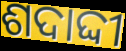
ଶଦାଦ୍ଦୀ